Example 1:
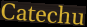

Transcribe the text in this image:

Catechu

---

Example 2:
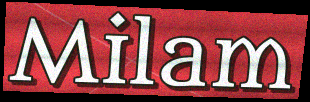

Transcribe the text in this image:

Milam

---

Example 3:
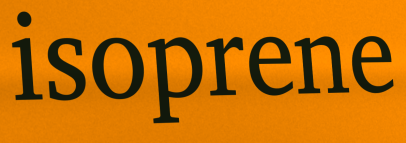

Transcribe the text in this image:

isoprene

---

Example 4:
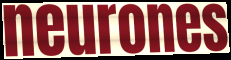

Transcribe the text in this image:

neurones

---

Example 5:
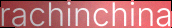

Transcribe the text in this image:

rachinchina